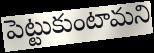
పెట్టుకుంటామని